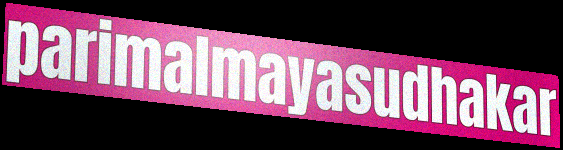
parimalmayasudhakar